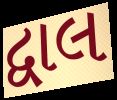
દ્વાલ